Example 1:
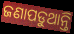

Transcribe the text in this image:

ଜଣାପଡୁଥାନ୍ତି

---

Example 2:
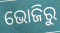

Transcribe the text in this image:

ଭୋଜିରୁ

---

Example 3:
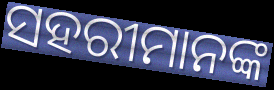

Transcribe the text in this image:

ସହରୀମାନଙ୍କ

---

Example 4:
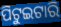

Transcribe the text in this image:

ପିଟୁଇଟାରି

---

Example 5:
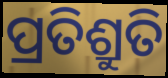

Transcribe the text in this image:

ପ୍ରତିଶ୍ରୁତି